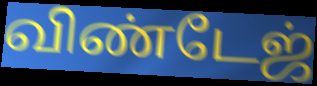
விண்டேஜ்